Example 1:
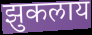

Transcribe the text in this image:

झुकलाय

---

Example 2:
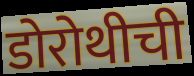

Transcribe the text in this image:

डोरोथीची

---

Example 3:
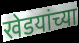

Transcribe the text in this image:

खेडयांच्या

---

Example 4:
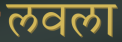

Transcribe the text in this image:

लवला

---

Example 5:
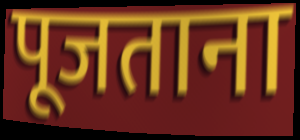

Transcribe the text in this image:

पूजताना